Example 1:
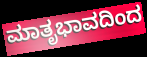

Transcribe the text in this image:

ಮಾತೃಭಾವದಿಂದ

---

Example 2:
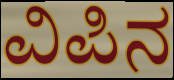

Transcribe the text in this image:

ವಿಪಿನ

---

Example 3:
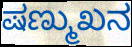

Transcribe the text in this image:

ಷಣ್ಮುಖನ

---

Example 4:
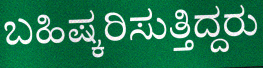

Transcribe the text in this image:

ಬಹಿಷ್ಕರಿಸುತ್ತಿದ್ದರು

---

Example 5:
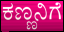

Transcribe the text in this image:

ಕಣ್ಣನಿಗೆ